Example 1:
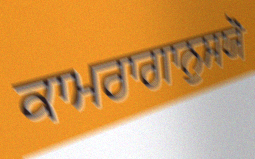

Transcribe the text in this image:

ਕਾਮਰਾਗਾਨੁਸਯੋ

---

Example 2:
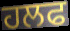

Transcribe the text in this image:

ਹਲਫ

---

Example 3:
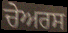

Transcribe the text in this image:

ਚੇਅਰਸ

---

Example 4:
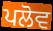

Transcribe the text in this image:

ਪਲੋਵ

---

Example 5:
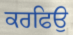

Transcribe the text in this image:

ਕਰਫਿਉ